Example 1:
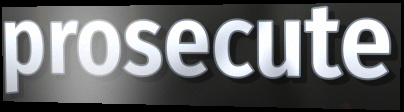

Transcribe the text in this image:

prosecute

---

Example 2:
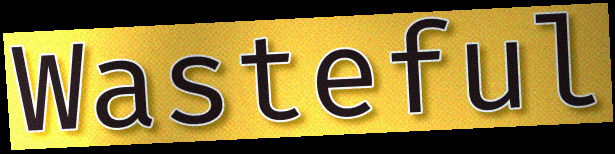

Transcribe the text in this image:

Wasteful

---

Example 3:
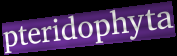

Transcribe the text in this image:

pteridophyta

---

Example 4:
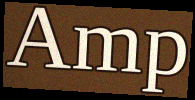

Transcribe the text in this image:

Amp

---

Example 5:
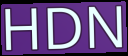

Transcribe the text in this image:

HDN